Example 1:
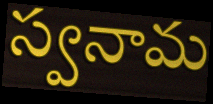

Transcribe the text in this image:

స్వనామ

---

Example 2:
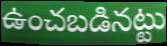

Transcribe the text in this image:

ఉంచబడినట్టు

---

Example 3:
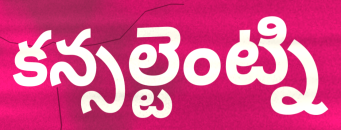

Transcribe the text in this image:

కన్సల్టెంట్ని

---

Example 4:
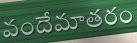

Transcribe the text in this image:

వందేమాతరం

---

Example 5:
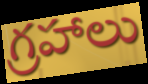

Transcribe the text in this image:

గ్రహాలు